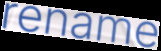
rename